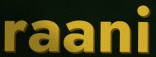
raani